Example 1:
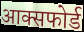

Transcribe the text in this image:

आक्सफोर्ड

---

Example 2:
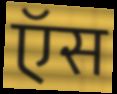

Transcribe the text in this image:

ऍस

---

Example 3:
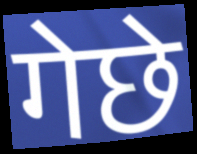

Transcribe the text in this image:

गेछे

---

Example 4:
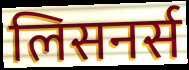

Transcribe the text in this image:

लिसनर्स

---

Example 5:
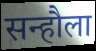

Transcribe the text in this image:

सन्हौला